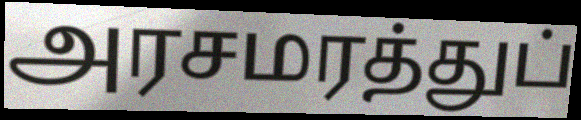
அரசமரத்துப்